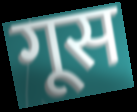
गूस